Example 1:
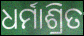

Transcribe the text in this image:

ଧର୍ମାଶ୍ରିତ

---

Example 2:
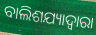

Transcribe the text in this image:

ବାଲିଶଯ୍ୟାଦ୍ଵାରା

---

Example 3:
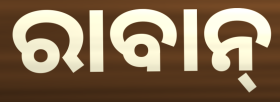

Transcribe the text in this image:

ରାବାନ୍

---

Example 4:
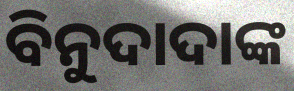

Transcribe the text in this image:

ବିନୁଦାଦାଙ୍କ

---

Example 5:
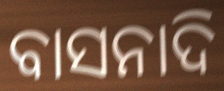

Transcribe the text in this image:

ବାସନାଦି